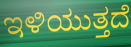
ಇಳಿಯುತ್ತದೆ